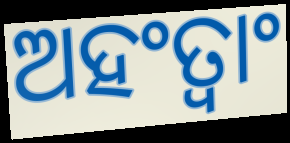
ଅହଂତ୍ୱାଂ